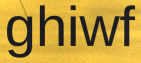
ghiwf